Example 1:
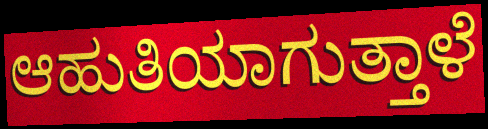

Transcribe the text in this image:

ಆಹುತಿಯಾಗುತ್ತಾಳೆ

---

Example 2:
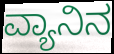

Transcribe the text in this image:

ವ್ಯಾನಿನ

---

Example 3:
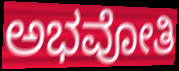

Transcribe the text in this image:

ಅಭವೋತಿ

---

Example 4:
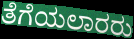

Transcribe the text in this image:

ತೆಗೆಯಲಾರರು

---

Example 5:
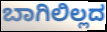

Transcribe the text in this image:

ಬಾಗಿಲಿಲ್ಲದ